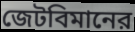
জেটবিমানের